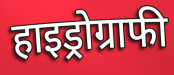
हाइड्रोग्राफी